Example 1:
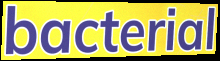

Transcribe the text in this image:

bacterial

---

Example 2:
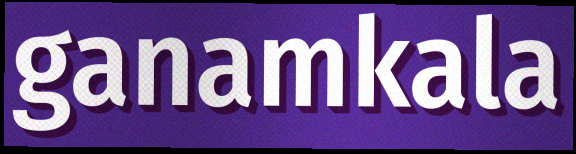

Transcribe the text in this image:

ganamkala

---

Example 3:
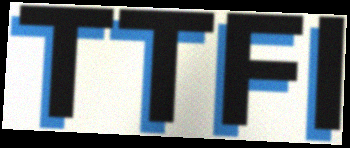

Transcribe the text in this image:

TTFI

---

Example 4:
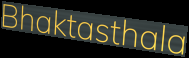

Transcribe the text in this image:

Bhaktasthala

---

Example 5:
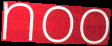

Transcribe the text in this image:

noo